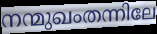
നന്മുഖംതന്നിലേ